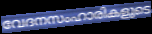
വേദനസംഹാരികളുടെ